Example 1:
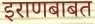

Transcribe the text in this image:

इराणबाबत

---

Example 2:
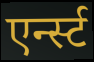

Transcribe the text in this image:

एर्न्स्ट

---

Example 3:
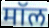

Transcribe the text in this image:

मॉल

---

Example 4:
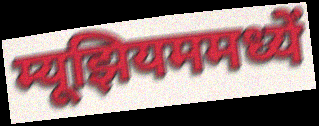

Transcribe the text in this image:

म्यूझियममध्यें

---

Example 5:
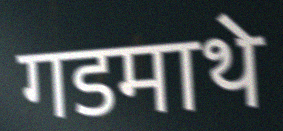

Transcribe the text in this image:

गडमाथे